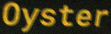
Oyster